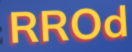
RROd